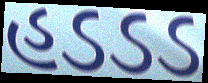
હડડડ